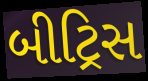
બીટ્રિસ